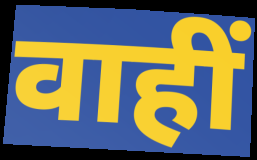
वाहीं